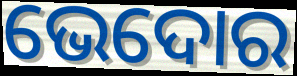
ଭେଦୋର